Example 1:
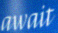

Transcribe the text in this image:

await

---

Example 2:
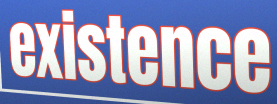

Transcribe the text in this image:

existence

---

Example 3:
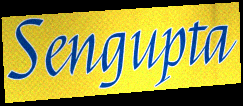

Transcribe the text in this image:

Sengupta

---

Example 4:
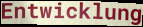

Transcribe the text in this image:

Entwicklung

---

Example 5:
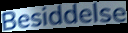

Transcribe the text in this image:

Besiddelse